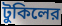
টুকিলের